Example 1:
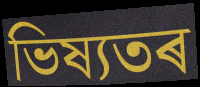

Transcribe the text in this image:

ভিষ্যতৰ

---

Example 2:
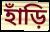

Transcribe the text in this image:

হাঁড়ি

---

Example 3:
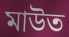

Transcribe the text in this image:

মাউত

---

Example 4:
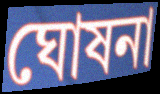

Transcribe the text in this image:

ঘোষনা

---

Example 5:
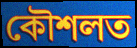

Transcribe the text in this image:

কৌশলত